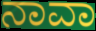
ನಾವಾ